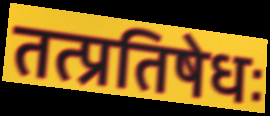
तत्प्रतिषेधः